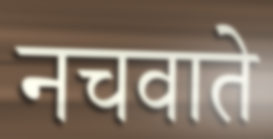
नचवाते